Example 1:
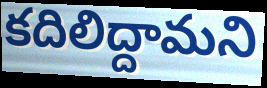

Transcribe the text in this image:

కదిలిద్దామని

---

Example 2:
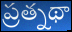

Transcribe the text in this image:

ప్రత్నథా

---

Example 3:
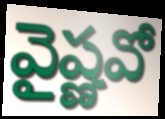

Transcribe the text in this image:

వైష్ణవో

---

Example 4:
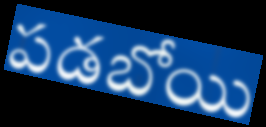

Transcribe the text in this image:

పడబోయి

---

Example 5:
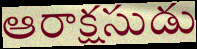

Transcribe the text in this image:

ఆరాక్షసుడు